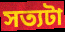
সত্যটা